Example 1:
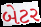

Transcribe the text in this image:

બેટર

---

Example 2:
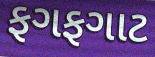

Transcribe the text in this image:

ફગફગાટ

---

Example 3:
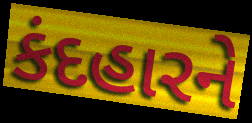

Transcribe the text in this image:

કંદહારને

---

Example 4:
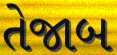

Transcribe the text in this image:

તેજાબ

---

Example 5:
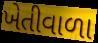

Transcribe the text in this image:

ખેતીવાળા